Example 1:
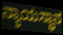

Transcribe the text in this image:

ನ್ಯಾಯಸ್ಥಾನ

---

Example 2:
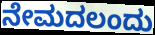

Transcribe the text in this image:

ನೇಮದಲಂದು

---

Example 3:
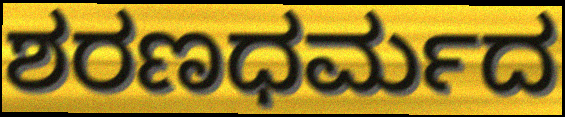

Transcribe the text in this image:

ಶರಣಧರ್ಮದ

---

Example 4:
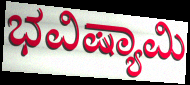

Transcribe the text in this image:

ಭವಿಷ್ಯಾಮಿ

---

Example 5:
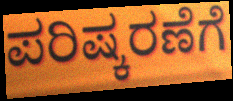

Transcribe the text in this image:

ಪರಿಷ್ಕರಣೆಗೆ